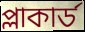
প্লাকার্ড